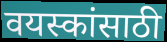
वयस्कांसाठी